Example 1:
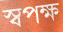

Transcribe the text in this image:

স্বপক্ষ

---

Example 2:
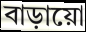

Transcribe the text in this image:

বাড়ায়ো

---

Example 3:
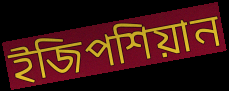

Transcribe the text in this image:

ইজিপশিয়ান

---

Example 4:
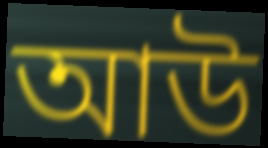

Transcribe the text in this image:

আউ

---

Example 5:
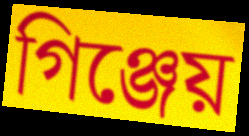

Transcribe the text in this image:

গিঞ্জেয়